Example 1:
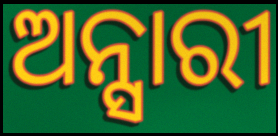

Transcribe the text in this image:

ଅନ୍ସାରୀ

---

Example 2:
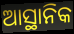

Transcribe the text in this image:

ଆସ୍ଥାନିକ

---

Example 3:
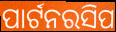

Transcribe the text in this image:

ପାର୍ଟନରସିପ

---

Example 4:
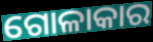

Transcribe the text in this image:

ଗୋଳାକାର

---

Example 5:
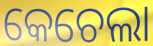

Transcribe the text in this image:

କେଚେଲା